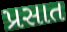
પ્રસાત